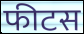
फीटस